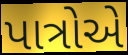
પાત્રોએ